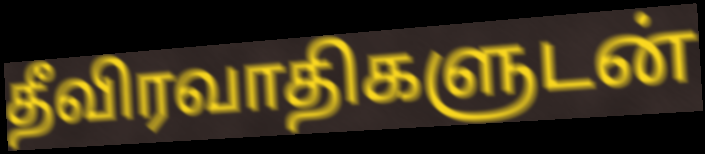
தீவிரவாதிகளுடன்